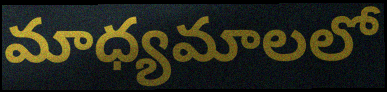
మాధ్యమాలలో